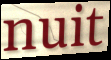
nuit